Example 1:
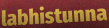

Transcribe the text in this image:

labhistunna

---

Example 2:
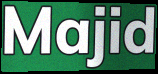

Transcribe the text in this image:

Majid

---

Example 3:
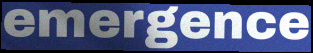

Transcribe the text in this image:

emergence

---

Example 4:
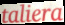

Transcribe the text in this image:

taliera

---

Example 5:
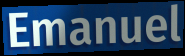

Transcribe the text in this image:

Emanuel